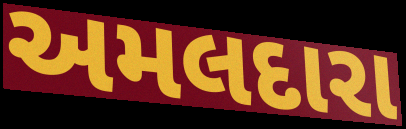
અમલદારા